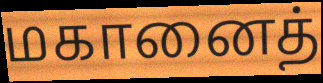
மகானைத்